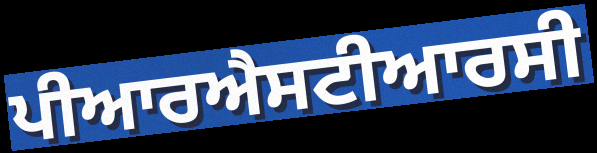
ਪੀਆਰਐਸਟੀਆਰਸੀ